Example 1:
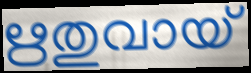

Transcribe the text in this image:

ഋതുവായ്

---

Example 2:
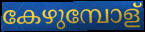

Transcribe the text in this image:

കേഴുമ്പോള്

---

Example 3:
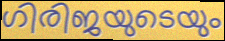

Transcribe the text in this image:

ഗിരിജയുടെയും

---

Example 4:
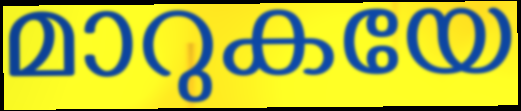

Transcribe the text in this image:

മാറുകയേ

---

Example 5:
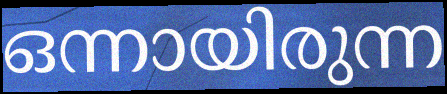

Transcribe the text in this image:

ഒന്നായിരുന്ന